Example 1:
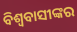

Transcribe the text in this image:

ବିଶ୍ୱବାସୀଙ୍କର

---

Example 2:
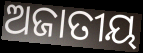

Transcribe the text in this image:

ଅଜାତୀୟ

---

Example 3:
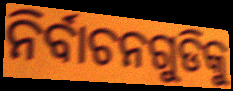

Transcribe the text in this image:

ନିର୍ବାଚନଗୁଡିକୁ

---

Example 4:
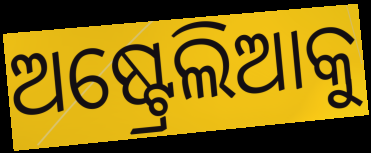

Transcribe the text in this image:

ଅଷ୍ଟ୍ରେଲିଆକୁ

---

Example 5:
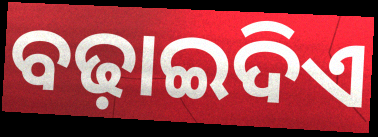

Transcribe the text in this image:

ବଢ଼ାଇଦିଏ